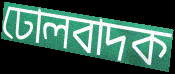
ঢোলবাদক